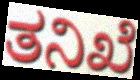
ತನಿಖೆ